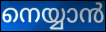
നെയ്യാൻ